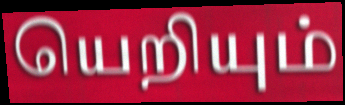
யெறியும்